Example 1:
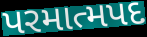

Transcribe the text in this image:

પરમાત્મપદ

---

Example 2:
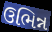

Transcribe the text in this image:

ઉભિન્ન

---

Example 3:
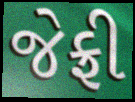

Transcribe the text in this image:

જેફ્રી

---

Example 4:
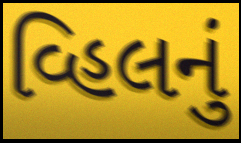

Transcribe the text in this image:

વ્હિલનું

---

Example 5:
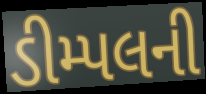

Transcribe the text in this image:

ડીમ્પલની